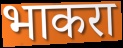
भाकरा